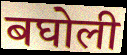
बघोली